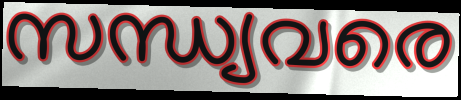
സന്ധ്യവരെ